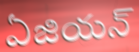
ఏజియన్